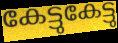
കേട്ടുകേട്ടു